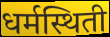
धर्मस्थिती